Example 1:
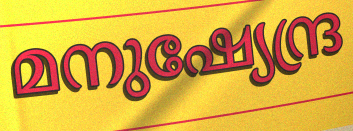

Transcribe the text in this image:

മനുഷ്യേന്ദ്ര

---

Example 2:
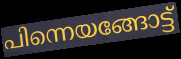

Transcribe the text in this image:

പിന്നെയങ്ങോട്ട്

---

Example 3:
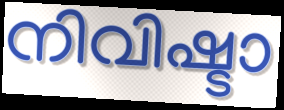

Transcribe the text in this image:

നിവിഷ്ടാ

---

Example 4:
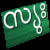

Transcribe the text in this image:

സ്യുഃ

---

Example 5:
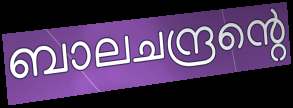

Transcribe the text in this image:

ബാലചന്ദ്രന്റെ